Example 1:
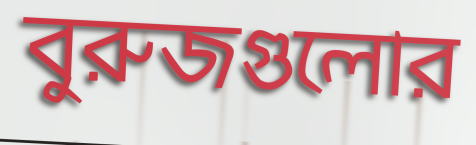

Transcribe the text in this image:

বুরুজগুলোর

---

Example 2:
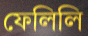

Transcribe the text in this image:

ফেলিলি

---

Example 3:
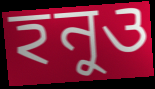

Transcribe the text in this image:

হনুও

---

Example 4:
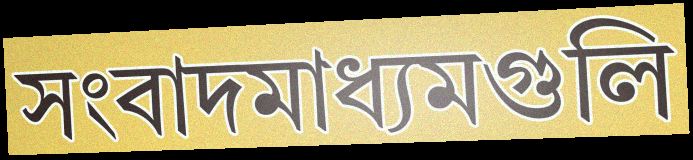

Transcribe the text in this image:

সংবাদমাধ্যমগুলি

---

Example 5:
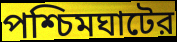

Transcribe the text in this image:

পশ্চিমঘাটের